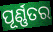
ପୂର୍ଣ୍ଣତର